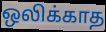
ஒலிக்காத